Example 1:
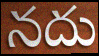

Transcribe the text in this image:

నదు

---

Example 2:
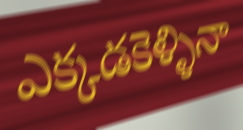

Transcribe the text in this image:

ఎక్కడకెళ్ళినా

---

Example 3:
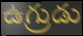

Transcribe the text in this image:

ఉగ్రుడు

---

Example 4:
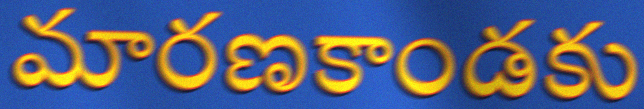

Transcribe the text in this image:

మారణకాండకు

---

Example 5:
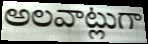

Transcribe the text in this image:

అలవాట్లుగా